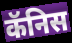
कॅनिस